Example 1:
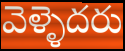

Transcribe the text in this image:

వెళ్ళెదరు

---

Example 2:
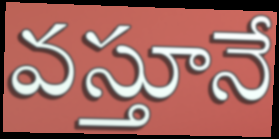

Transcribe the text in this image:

వస్తూనే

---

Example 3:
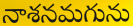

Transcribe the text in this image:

నాశనమగును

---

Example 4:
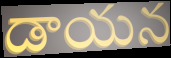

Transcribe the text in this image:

డాయన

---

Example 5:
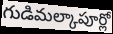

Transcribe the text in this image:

గుడిమల్కాపూర్లో